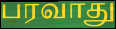
பரவாது